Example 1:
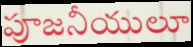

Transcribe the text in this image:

పూజనీయులూ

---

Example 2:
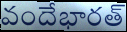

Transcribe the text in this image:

వందేభారత్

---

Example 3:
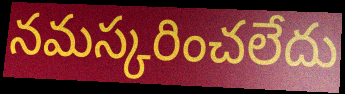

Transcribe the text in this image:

నమస్కరించలేదు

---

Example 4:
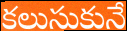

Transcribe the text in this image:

కలుసుకునే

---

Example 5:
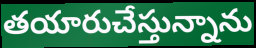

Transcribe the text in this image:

తయారుచేస్తున్నాను